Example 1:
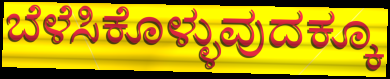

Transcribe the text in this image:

ಬೆಳೆಸಿಕೊಳ್ಳುವುದಕ್ಕೂ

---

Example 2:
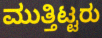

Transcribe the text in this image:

ಮುತ್ತಿಟ್ಟರು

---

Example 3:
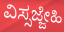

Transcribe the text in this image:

ವಿಸ್ಸಜ್ಜೇಹಿ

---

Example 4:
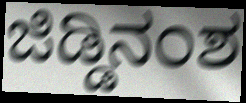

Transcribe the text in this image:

ಜಿಡ್ಡಿನಂಶ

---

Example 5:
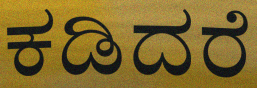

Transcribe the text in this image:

ಕಡಿದರೆ